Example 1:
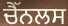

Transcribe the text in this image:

ਚੈੱਨਲਸ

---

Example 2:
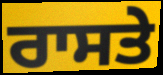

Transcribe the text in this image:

ਰਾਸਤੇ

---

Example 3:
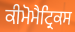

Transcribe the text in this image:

ਕੀਮੋਮੈਟ੍ਰਿਕਸ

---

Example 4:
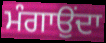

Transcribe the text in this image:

ਮੰਗਾਉਂਦਾ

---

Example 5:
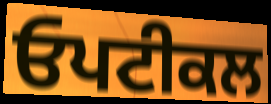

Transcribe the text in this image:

ਓਪਟੀਕਲ